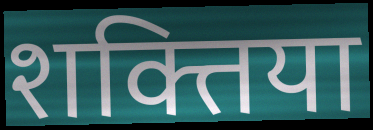
शक्तिया